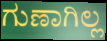
ಗುಣಾಗಿಲ್ಲ